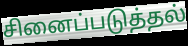
சினைப்படுத்தல்